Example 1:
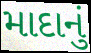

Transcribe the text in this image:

માદાનું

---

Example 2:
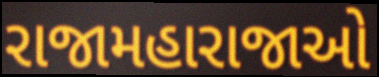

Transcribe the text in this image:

રાજામહારાજાઓ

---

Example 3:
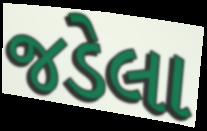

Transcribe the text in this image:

જડેલા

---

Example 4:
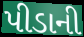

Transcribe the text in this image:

પીડાની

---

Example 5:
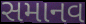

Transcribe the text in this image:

સમાનવ